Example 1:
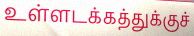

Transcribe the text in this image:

உள்ளடக்கத்துக்குச்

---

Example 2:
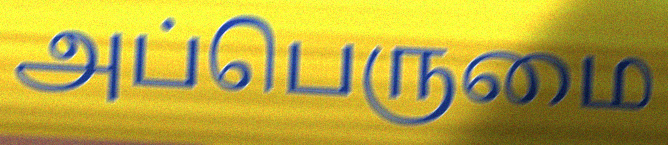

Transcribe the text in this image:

அப்பெருமை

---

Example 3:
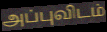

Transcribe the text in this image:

அப்புவிடம்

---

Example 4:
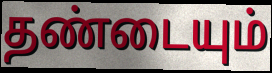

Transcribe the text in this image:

தண்டையும்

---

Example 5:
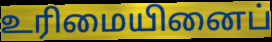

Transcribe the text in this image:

உரிமையினைப்